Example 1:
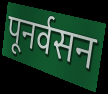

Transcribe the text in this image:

पूनर्वसन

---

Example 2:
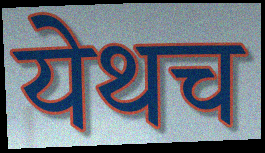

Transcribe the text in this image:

येथच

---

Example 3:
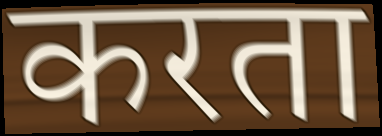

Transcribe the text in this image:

करता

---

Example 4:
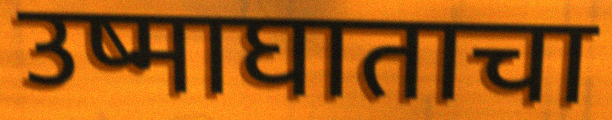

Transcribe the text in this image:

उष्माघाताचा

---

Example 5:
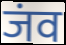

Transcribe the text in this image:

जंव